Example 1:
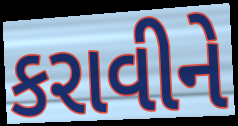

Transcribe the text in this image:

કરાવીને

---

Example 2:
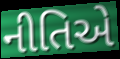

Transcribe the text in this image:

નીતિએ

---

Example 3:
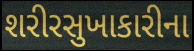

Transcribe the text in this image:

શરીરસુખાકારીના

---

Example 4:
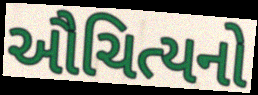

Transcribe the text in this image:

ઔચિત્યનો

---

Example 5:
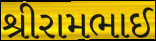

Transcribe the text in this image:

શ્રીરામભાઈ